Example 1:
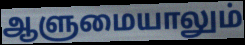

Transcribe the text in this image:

ஆளுமையாலும்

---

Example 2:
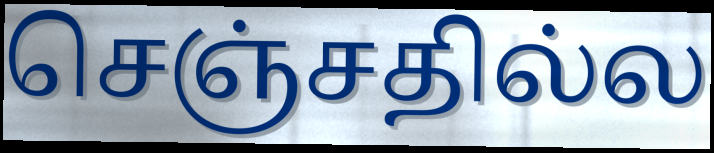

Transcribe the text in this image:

செஞ்சதில்ல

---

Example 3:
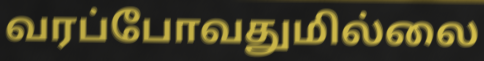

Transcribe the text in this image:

வரப்போவதுமில்லை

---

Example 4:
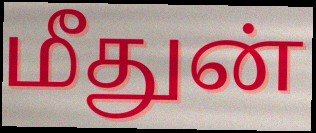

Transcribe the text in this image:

மீதுன்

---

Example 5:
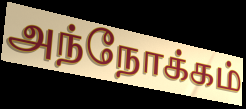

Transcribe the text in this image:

அந்நோக்கம்